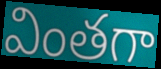
వింతగా